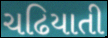
ચઢિયાતી